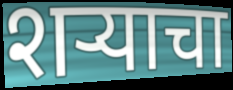
शर्‍याचा